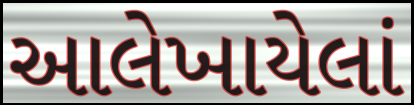
આલેખાયેલાં